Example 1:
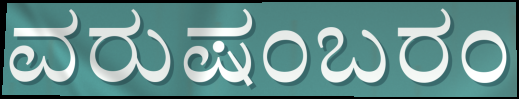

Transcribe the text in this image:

ವರುಷಂಬರಂ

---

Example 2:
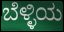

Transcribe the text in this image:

ಬೆಳ್ಳಿಯ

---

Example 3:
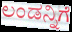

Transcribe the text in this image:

ಲಂಡನ್ನಿಗೆ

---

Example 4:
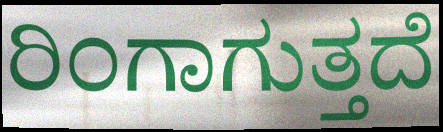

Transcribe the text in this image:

ರಿಂಗಾಗುತ್ತದೆ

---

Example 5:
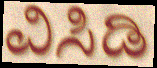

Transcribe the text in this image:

ವಿಸಿಡಿ